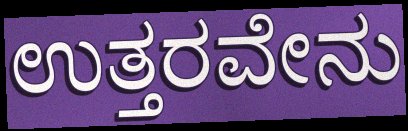
ಉತ್ತರವೇನು